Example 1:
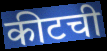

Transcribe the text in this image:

कीटची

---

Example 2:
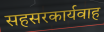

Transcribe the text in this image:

सहसरकार्यवाह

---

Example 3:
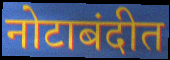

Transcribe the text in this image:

नोटाबंदीत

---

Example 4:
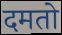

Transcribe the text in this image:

दमतो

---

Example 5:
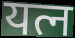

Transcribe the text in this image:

यत्न